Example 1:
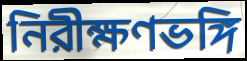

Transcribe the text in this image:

নিরীক্ষণভঙ্গি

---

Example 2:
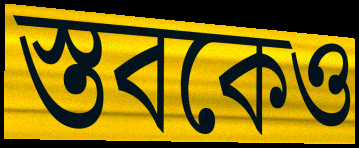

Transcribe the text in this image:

স্তবকেও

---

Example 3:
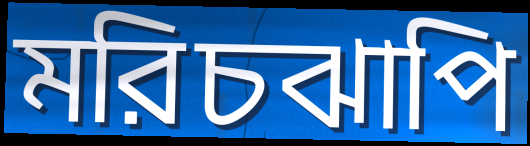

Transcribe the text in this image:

মরিচঝাপি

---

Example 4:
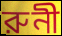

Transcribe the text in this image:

রুনী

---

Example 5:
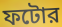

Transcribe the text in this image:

ফটোর